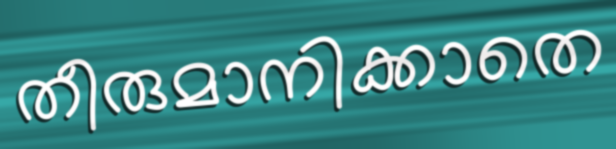
തീരുമാനിക്കാതെ